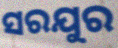
ସରଯୁର